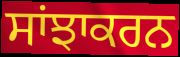
ਸਾਂਝਾਕਰਨ